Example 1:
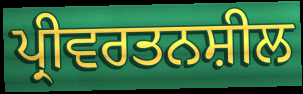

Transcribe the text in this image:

ਪ੍ਰੀਵਰਤਨਸ਼ੀਲ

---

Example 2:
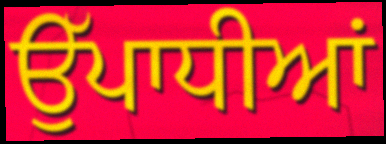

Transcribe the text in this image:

ਉੱਪਾਧੀਆਂ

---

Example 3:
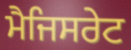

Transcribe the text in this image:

ਮੈਜਿਸਰੇਟ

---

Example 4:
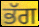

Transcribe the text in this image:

ਭੱਗ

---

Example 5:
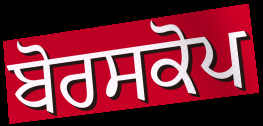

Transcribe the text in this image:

ਬੋਰਸਕੋਪ